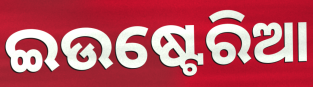
ଇଉଷ୍ଟେରିଆ